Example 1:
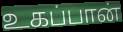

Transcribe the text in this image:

உகப்பான்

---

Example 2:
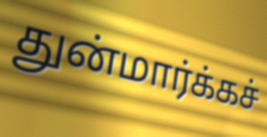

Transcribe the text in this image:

துன்மார்க்கச்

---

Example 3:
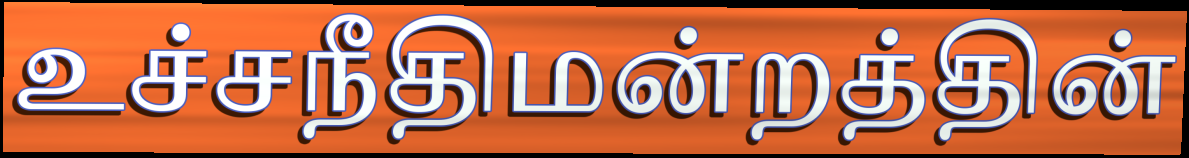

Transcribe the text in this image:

உச்சநீதிமன்றத்தின்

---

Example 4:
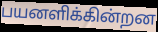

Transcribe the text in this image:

பயனளிக்கின்றன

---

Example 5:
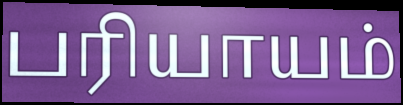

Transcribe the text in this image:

பரியாயம்